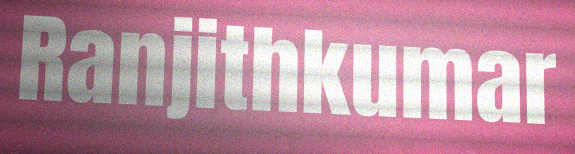
Ranjithkumar